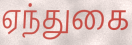
ஏந்துகை